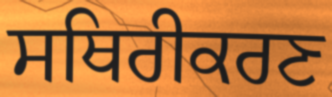
ਸਥਿਰੀਕਰਣ